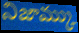
నిజామ్కు